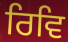
ਰਿਵਿ